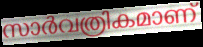
സാർവത്രികമാണ്